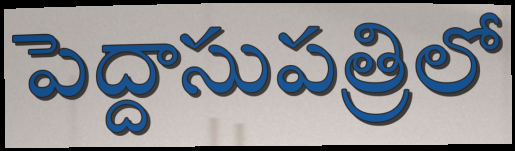
పెద్దాసుపత్రిలో